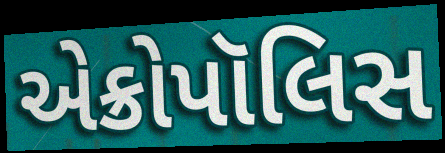
એક્રોપૉલિસ